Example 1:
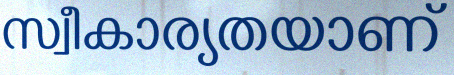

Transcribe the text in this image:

സ്വീകാര്യതയാണ്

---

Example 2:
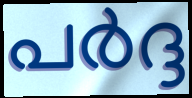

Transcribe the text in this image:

പർദ്ദ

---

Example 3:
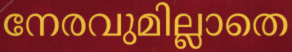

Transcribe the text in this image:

നേരവുമില്ലാതെ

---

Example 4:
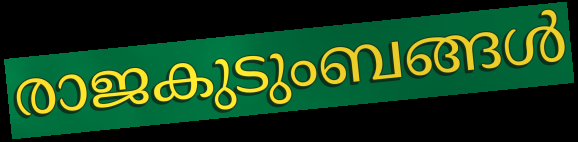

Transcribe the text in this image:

രാജകുടുംബങ്ങൾ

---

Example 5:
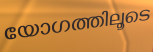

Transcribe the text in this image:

യോഗത്തിലൂടെ